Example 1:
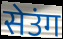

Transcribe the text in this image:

सेउंग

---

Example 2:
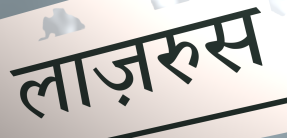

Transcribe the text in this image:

लाज़रुस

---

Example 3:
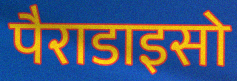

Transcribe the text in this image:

पैराडाइसो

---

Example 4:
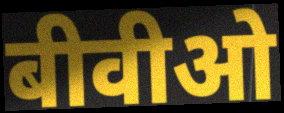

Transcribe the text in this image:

बीवीओ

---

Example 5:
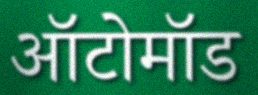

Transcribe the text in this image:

ऑटोमॉड